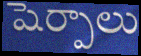
షెర్పాలు